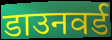
डाउनवर्ड